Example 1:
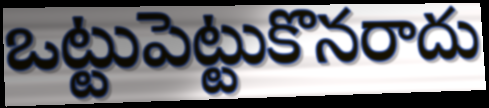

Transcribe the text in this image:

ఒట్టుపెట్టుకొనరాదు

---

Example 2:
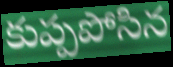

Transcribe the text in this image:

కుప్పపోసిన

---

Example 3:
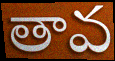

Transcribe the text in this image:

తావ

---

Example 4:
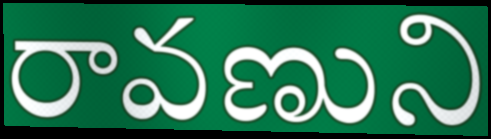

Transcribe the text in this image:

రావణుని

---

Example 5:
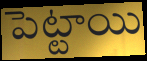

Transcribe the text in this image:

పెట్టాయి